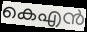
കെഎൻ